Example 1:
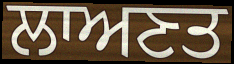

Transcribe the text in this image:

ਲਾਅਣਤ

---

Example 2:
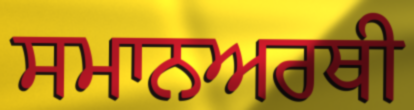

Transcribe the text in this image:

ਸਮਾਨਅਰਥੀ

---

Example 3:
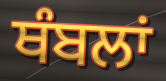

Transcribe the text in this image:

ਥੰਬਲਾਂ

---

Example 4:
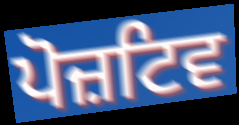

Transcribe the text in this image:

ਪੋਜ਼ਟਿਵ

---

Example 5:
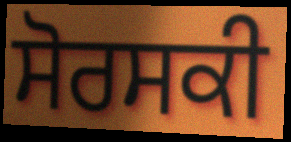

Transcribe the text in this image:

ਸੋਰਸਕੀ